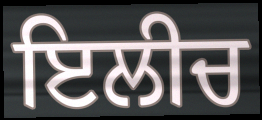
ਇਲੀਚ